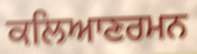
ਕਲਿਆਣਰਮਨ